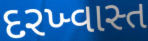
દરખ્વાસ્ત